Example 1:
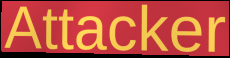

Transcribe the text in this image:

Attacker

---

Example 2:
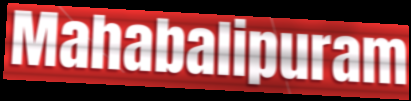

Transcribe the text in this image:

Mahabalipuram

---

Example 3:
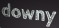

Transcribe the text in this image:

downy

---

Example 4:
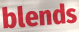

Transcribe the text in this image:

blends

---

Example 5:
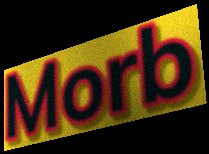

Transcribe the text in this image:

Morb